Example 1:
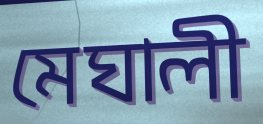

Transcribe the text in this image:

মেঘালী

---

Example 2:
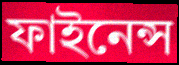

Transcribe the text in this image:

ফাইনেন্স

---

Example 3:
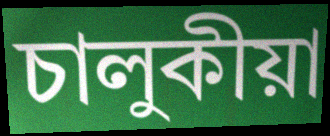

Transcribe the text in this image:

চালুকীয়া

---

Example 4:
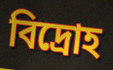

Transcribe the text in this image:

বিদ্ৰোহ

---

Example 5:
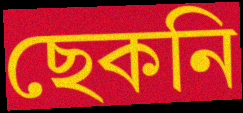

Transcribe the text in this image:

ছেকনি